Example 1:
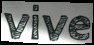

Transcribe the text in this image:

vive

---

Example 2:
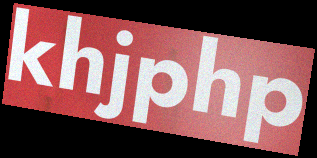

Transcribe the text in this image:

khjphp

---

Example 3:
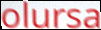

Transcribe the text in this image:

olursa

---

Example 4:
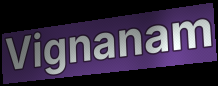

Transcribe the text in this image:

Vignanam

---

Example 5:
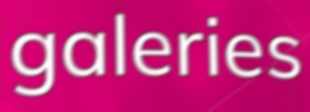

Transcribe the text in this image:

galeries